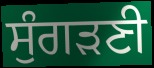
ਸੁੰਗੜਣੀ